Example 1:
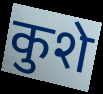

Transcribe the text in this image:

कुशे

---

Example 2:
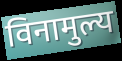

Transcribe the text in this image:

विनामुल्य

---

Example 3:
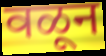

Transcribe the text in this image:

वळून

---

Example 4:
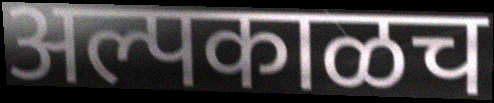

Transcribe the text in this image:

अल्पकाळच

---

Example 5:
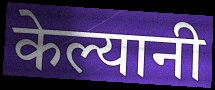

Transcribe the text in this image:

केल्यानी